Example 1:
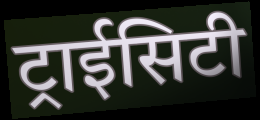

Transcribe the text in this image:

ट्राईसिटी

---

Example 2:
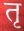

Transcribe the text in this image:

तृ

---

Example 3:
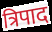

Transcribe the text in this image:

त्रिपाद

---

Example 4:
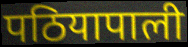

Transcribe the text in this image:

पठियापाली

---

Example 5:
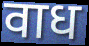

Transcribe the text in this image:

वाध